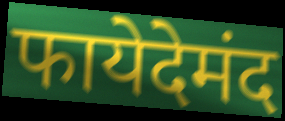
फायेदेमंद